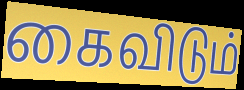
கைவிடும்